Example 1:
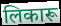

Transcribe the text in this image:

लिकारू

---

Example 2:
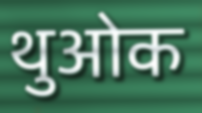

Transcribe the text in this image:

थुओक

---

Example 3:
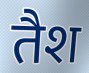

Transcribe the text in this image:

तैश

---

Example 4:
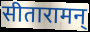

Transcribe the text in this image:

सीतारामन्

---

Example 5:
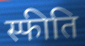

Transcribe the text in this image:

स्फीति